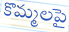
కొమ్మలపై